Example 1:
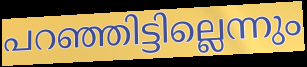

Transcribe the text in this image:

പറഞ്ഞിട്ടില്ലെന്നും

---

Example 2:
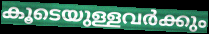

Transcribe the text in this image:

കൂടെയുള്ളവർക്കും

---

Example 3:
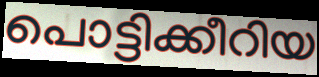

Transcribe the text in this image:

പൊട്ടിക്കീറിയ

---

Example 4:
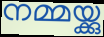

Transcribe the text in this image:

നമ്മയ്ക്കു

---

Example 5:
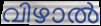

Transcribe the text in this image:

വിഴാൽ